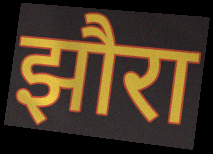
झौरा